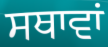
ਸਥਾਵਾਂ